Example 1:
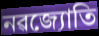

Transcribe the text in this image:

নৱজ্যোতি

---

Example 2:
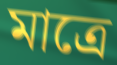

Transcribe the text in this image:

মাত্ৰে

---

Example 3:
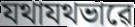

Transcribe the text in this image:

যথাযথভাৱে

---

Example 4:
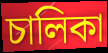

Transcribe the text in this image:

চালিকা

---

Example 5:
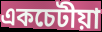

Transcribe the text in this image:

একচেটীয়া